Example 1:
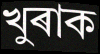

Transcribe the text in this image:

খুৰাক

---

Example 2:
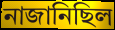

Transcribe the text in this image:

নাজানিছিল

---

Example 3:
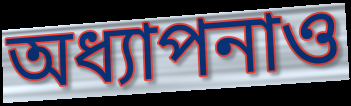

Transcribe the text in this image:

অধ্যাপনাও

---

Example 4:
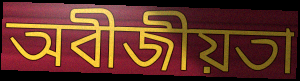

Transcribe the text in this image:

অবীজীয়তা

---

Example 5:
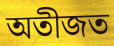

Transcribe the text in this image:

অতীজত